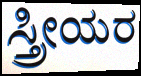
ಸ್ತ್ರೀಯರ